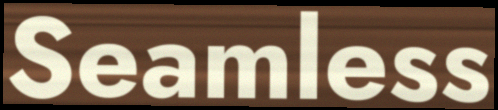
Seamless